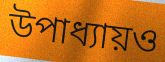
উপাধ্যায়ও